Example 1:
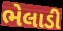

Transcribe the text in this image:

ભેલાડી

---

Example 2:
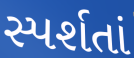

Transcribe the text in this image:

સ્પર્શતાં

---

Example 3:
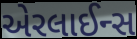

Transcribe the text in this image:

એરલાઈન્સ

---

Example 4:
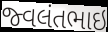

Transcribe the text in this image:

જ્વલંતભાઇ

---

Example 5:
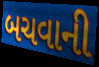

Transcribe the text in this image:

બચવાની